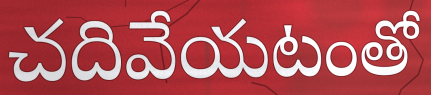
చదివేయటంతో